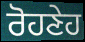
ਰੋਹਣੇਹ